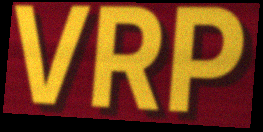
VRP